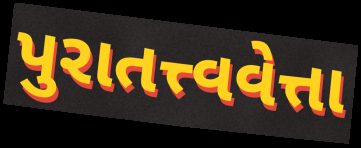
પુરાતત્ત્વવેત્તા